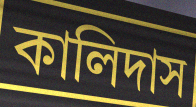
কালিদাস